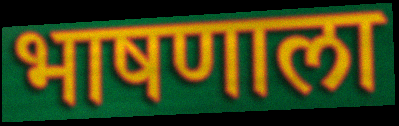
भाषणाला